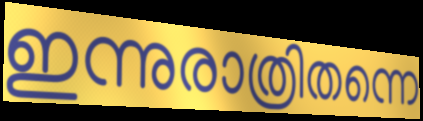
ഇന്നുരാത്രിതന്നെ